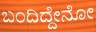
ಬಂದಿದ್ದೇನೋ